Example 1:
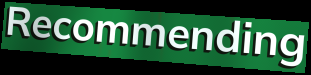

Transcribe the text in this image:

Recommending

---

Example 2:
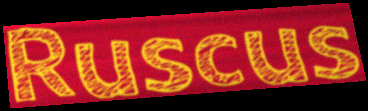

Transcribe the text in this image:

Ruscus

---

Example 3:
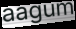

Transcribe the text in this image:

aagum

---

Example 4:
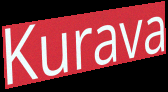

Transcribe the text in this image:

Kurava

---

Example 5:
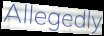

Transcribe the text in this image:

Allegedly